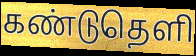
கண்டுதெளி